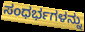
ಸಂಧರ್ಭಗಳನ್ನು